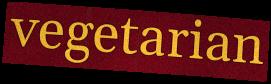
vegetarian